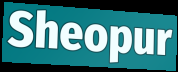
Sheopur